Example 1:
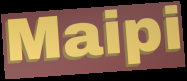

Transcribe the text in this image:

Maipi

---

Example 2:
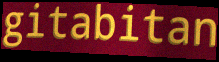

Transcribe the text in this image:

gitabitan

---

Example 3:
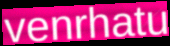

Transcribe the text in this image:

venrhatu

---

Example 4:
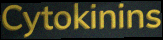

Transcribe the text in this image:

Cytokinins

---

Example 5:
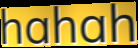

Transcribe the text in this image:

hahah